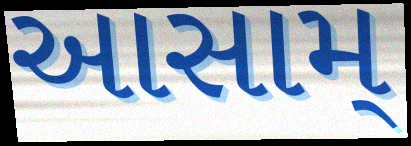
આસામ્